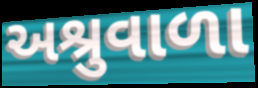
અશ્રુવાળા